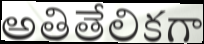
అతితేలికగా